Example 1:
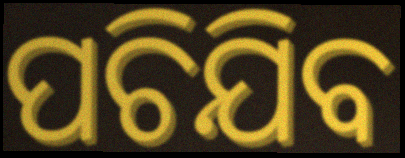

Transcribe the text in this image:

ପଚିଯିବ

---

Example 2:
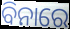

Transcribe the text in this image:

ବିନାରେ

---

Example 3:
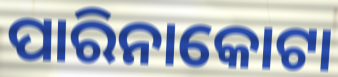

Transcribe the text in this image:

ପାରିନାକୋଟା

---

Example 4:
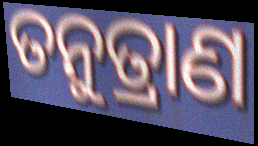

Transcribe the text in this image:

ତନୁତ୍ରାଣ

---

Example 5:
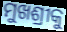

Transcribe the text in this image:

ମୁଖଶ୍ରୀକୁ